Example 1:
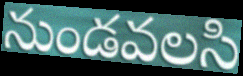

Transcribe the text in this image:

నుండవలసి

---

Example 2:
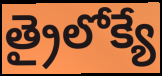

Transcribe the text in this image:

త్రైలోక్యే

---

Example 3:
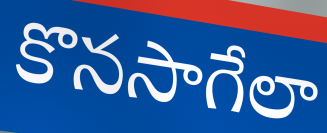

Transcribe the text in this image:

కొనసాగేలా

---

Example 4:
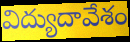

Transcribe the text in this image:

విద్యుదావేశం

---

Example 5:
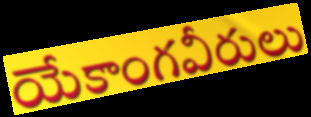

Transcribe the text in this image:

యేకాంగవీరులు